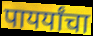
पायर्यांचा